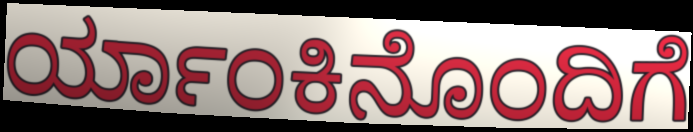
ರ್ಯಾಂಕಿನೊಂದಿಗೆ